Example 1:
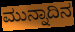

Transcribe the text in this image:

ಮುನ್ನಾದಿನ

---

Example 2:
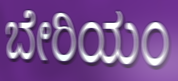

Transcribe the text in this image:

ಬೇರಿಯಂ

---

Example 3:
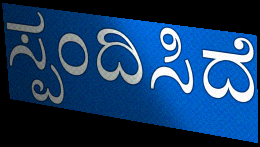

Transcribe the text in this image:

ಸ್ಪಂದಿಸಿದೆ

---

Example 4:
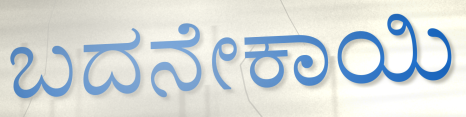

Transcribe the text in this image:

ಬದನೇಕಾಯಿ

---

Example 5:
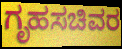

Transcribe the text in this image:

ಗೃಹಸಚಿವರ